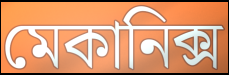
মেকানিক্স